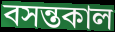
বসন্তকাল